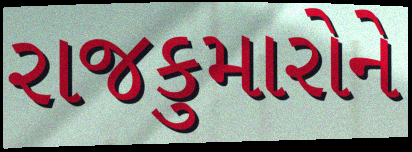
રાજકુમારોને